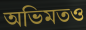
অভিমতও